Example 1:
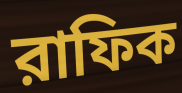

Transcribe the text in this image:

রাফিক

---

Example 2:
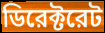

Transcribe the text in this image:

ডিরেক্টরেট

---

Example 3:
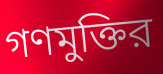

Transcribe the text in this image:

গণমুক্তির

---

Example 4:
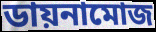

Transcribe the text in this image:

ডায়নামোজ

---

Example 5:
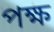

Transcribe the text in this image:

পক্ষ